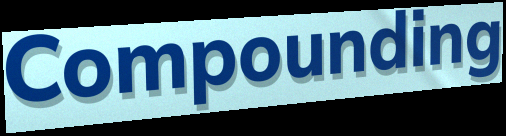
Compounding